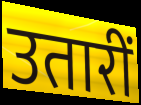
उतारीं